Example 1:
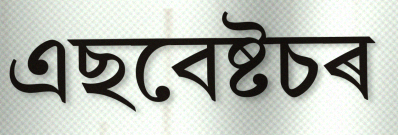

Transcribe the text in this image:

এছবেষ্টচৰ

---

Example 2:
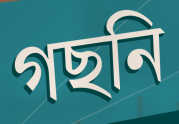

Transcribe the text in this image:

গছনি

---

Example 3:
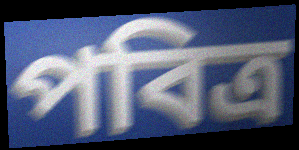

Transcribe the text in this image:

পবিত্ৰ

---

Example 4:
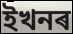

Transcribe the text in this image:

ইখনৰ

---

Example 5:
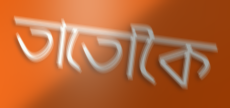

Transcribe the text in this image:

তাতোকৈ